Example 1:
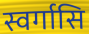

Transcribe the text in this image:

स्वर्गासि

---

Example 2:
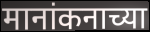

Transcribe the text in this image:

मानांकनाच्या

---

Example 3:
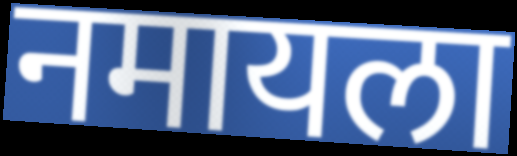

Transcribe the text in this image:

नमायला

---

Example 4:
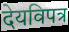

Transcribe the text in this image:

देयविपत्र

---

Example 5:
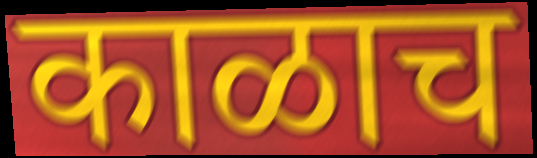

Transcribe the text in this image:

काळाच